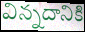
విన్నదానికి